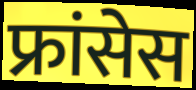
फ्रांसेस